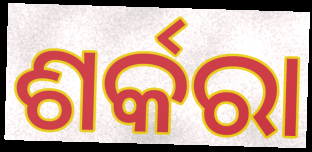
ଶର୍କରା